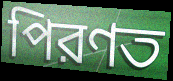
পিরণত